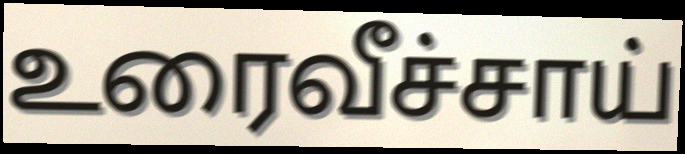
உரைவீச்சாய்